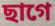
ছাগে